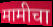
मामीचा